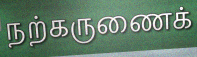
நற்கருணைக்